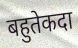
बहुतेकदा